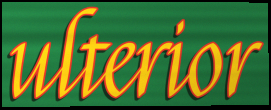
ulterior